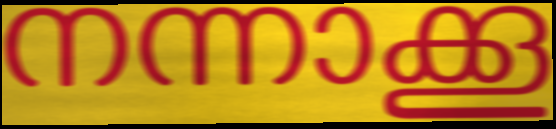
നന്നാക്കൂ